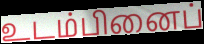
உடம்பினைப்